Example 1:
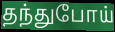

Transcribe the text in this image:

தந்துபோய்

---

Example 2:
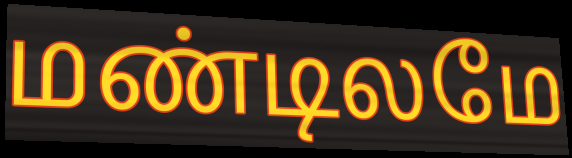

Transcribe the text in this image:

மண்டிலமே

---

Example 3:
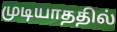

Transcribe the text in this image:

முடியாததில்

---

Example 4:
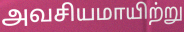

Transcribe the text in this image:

அவசியமாயிற்று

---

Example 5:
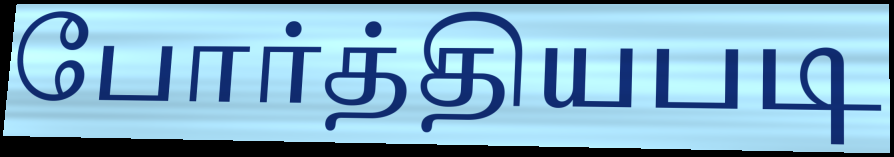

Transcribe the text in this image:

போர்த்தியபடி